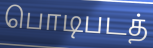
பொடிபடத்